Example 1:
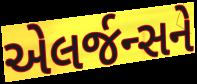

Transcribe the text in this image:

એલર્જન્સને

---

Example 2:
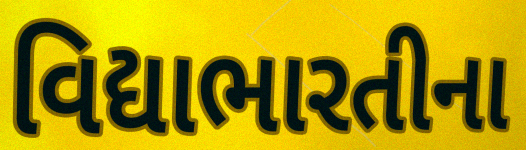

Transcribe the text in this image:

વિદ્યાભારતીના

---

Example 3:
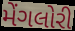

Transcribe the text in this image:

મેંગલોરી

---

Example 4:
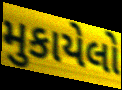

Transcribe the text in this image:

મુકાયેલો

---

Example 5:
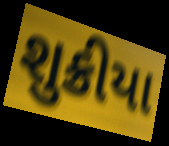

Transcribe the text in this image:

શુક્રીયા